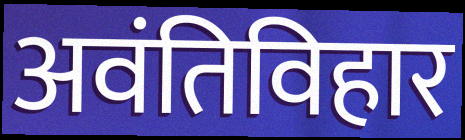
अवंतिविहार